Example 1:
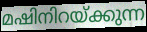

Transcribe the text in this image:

മഷിനിറയ്ക്കുന്ന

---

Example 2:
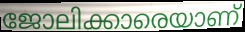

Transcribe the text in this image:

ജോലിക്കാരെയാണ്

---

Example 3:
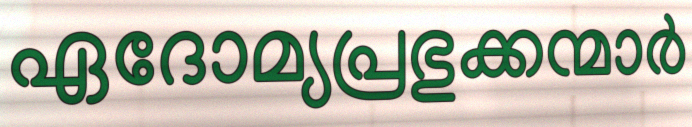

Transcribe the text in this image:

ഏദോമ്യപ്രഭുക്കന്മാർ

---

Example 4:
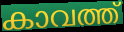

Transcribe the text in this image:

കാവത്ത്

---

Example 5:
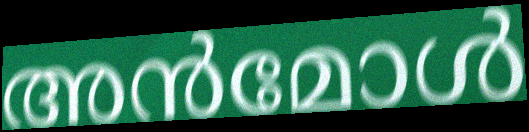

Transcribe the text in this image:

അൻമോൾ